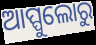
ଆପ୍ପୁଲୋରୁ